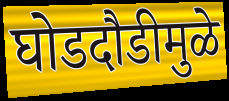
घोडदौडीमुळे